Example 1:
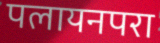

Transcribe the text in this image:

पलायनपरा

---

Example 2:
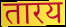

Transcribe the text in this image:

तारय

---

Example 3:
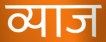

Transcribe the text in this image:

व्याज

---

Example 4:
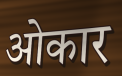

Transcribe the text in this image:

ओकार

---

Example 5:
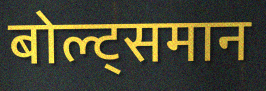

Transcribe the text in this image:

बोल्ट्समान